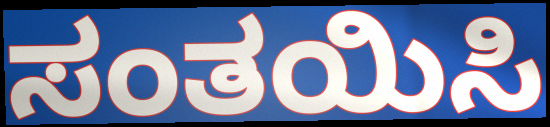
ಸಂತಯಿಸಿ